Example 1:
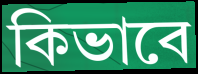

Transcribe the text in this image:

কিভাবে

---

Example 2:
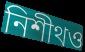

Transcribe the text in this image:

নিশীথও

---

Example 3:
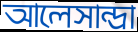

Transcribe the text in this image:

আলেসান্দ্রা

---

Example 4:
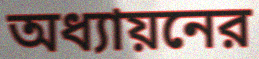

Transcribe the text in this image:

অধ্যায়নের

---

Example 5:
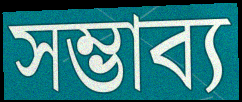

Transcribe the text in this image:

সম্ভাব্য